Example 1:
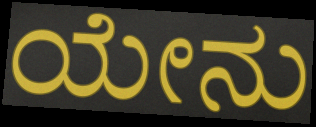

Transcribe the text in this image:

ಯೇನು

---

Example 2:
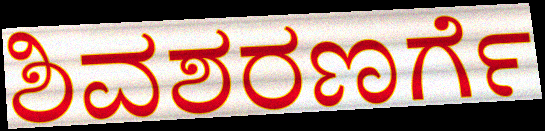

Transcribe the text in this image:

ಶಿವಶರಣರ್ಗೆ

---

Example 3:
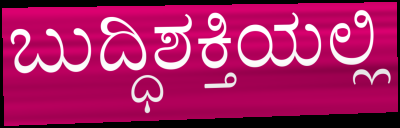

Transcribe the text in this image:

ಬುದ್ಧಿಶಕ್ತಿಯಲ್ಲಿ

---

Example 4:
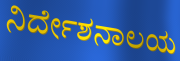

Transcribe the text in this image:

ನಿರ್ದೇಶನಾಲಯ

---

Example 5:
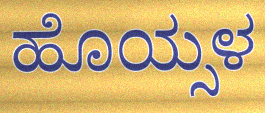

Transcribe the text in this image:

ಹೊಯ್ಸಳ